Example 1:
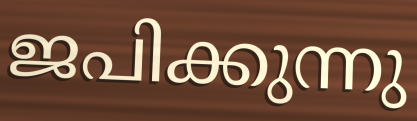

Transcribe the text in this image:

ജപിക്കുന്നു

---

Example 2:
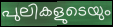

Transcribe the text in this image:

പുലികളുടെയും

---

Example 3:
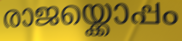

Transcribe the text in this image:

രാജയ്ക്കൊപ്പം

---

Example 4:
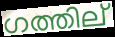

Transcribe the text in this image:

ഗത്തില്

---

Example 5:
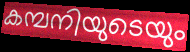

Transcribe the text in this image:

കമ്പനിയുടെയും